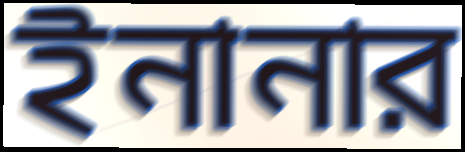
ইনানার